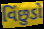
વિંછુડો